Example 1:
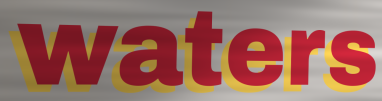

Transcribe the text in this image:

waters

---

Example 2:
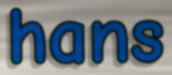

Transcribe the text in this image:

hans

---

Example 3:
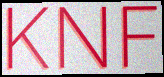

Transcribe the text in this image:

KNF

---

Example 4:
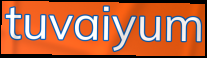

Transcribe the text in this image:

tuvaiyum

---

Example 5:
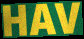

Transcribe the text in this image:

HAV